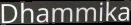
Dhammika